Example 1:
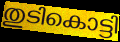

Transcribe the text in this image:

തുടികൊട്ടി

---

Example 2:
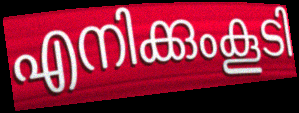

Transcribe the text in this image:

എനിക്കുംകൂടി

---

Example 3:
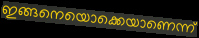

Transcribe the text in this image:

ഇങ്ങനെയൊക്കെയാണെന്ന്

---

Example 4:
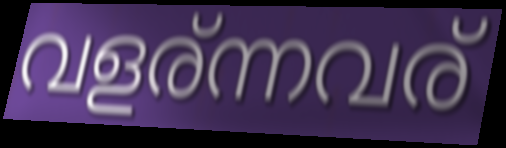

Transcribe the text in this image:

വളര്ന്നവര്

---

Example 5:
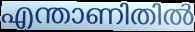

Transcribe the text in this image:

എന്താണിതിൽ